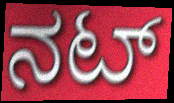
ನಟ್